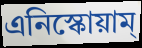
এনিস্কোয়াম্